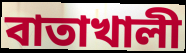
বাতাখালী